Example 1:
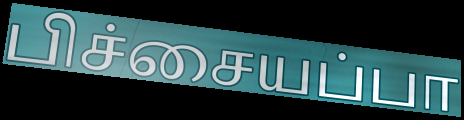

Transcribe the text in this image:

பிச்சையப்பா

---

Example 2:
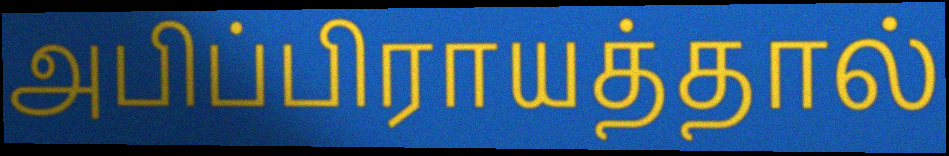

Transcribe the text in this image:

அபிப்பிராயத்தால்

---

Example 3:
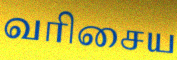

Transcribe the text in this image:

வரிசைய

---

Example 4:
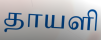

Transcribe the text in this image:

தாயளி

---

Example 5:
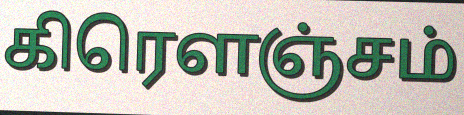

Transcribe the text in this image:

கிரௌஞ்சம்